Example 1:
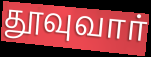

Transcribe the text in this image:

தூவுவார்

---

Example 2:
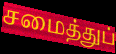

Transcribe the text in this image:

சமைத்துப்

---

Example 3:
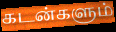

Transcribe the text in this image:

கடன்களும்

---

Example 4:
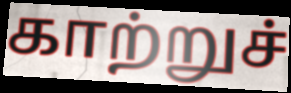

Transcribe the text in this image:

காற்றுச்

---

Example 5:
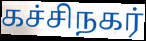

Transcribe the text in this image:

கச்சிநகர்